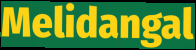
Melidangal